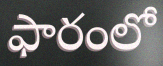
ఫారంలో